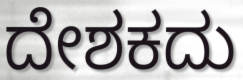
ದೇಶಕದು